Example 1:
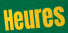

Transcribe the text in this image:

Heures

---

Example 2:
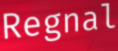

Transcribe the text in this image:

Regnal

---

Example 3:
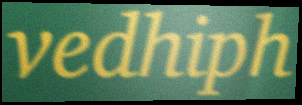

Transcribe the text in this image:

vedhiph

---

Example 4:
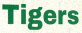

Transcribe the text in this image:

Tigers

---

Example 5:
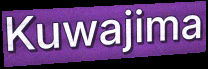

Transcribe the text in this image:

Kuwajima